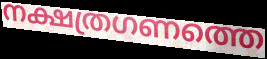
നക്ഷത്രഗണത്തെ